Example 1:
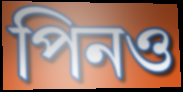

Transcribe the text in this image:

পিনও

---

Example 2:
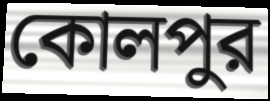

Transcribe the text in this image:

কোলপুর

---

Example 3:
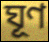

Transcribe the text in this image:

ঘূণ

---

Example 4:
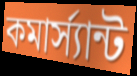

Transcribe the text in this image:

কমার্স্যান্ট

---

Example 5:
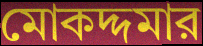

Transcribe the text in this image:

মোকদ্দমার